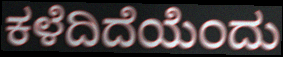
ಕಳೆದಿದೆಯೆಂದು